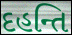
દહન્તિ